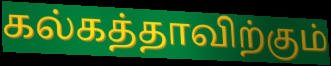
கல்கத்தாவிற்கும்